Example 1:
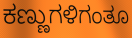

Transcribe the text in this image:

ಕಣ್ಣುಗಳಿಗಂತೂ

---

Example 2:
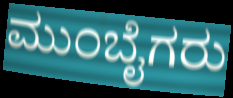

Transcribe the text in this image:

ಮುಂಬೈಗರು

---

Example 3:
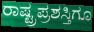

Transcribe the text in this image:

ರಾಷ್ಟ್ರಪ್ರಶಸ್ತಿಗೂ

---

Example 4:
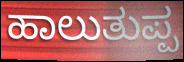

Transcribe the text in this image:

ಹಾಲುತುಪ್ಪ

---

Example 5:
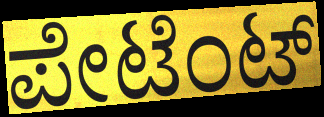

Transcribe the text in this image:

ಪೇಟೆಂಟ್